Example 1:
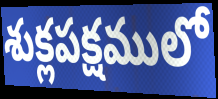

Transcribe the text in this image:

శుక్లపక్షములో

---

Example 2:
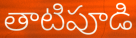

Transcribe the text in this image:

తాటిపూడి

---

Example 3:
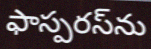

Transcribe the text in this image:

ఫాస్పరస్‌ను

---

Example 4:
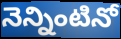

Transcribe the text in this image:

నెన్నింటినో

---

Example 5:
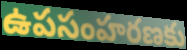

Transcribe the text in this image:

ఉపసంహరణకు